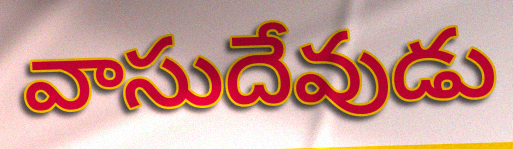
వాసుదేవుడు